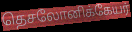
தெசலோனிக்கேயர்